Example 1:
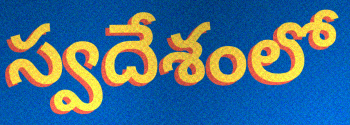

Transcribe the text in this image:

స్వదేశంలో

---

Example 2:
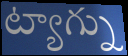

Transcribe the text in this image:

ట్యాగ్ను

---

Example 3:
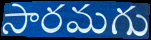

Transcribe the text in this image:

సారమగు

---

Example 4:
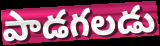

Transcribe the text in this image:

పాడగలడు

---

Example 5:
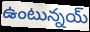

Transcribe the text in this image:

ఉంటున్నయ్